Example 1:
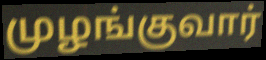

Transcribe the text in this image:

முழங்குவார்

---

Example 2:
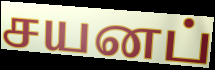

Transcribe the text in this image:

சயனப்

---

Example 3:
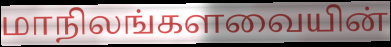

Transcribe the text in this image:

மாநிலங்களவையின்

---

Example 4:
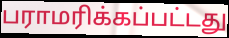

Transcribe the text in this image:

பராமரிக்கப்பட்டது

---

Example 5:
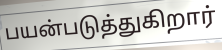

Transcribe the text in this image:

பயன்படுத்துகிறார்